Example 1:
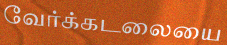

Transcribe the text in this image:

வேர்க்கடலையை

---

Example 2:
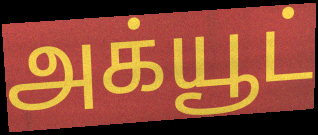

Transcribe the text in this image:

அக்யூட்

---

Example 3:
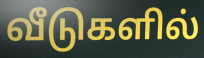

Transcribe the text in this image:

வீடுகளில்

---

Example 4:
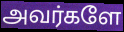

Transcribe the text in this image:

அவர்களே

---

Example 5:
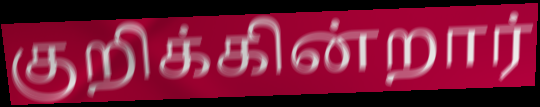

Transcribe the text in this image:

குறிக்கின்றார்